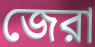
জেরা